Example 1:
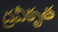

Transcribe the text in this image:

ద్రవీకృత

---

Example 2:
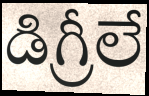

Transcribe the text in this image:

డిగ్రీలే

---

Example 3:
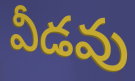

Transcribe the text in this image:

వీడవు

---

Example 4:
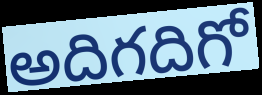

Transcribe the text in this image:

అదిగదిగో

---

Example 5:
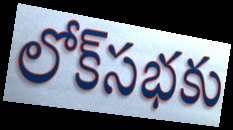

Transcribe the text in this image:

లోక్‌సభకు